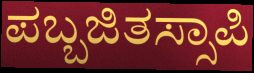
ಪಬ್ಬಜಿತಸ್ಸಾಪಿ